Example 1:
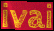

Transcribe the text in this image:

ivai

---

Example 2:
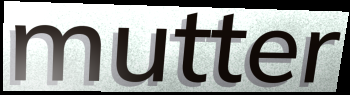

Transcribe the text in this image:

mutter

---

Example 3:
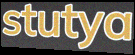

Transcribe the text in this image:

stutya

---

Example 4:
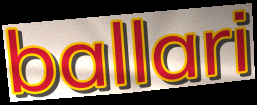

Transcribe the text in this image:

ballari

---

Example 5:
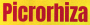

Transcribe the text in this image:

Picrorhiza